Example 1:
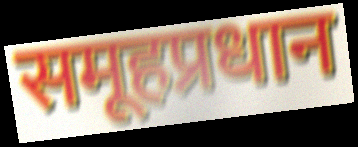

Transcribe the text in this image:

समूहप्रधान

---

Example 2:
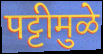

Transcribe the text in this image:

पट्टीमुळे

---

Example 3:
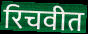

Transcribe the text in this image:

रिचवीत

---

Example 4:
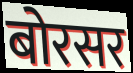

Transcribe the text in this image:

बोरसर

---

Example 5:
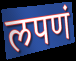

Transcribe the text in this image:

लपणं